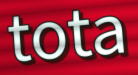
tota